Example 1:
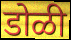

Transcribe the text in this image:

डोळी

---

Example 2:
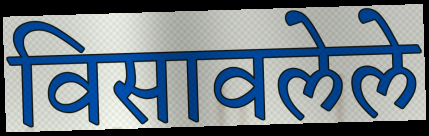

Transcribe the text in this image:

विसावलेले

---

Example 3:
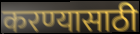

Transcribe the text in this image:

करण्‍यासाठी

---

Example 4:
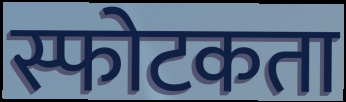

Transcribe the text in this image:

स्फोटकता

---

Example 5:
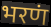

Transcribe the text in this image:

भरणं